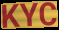
KYC